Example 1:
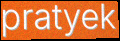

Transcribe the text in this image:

pratyek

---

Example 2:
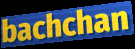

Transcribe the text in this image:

bachchan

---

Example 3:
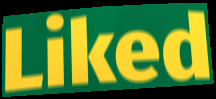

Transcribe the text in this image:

Liked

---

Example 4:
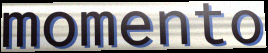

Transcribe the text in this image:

momento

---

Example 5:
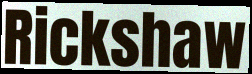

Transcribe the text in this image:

Rickshaw